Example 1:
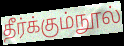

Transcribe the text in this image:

தீர்க்கும்நூல்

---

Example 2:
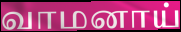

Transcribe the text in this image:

வாமனாய்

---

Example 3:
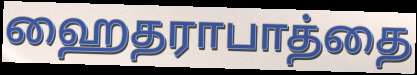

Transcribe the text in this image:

ஹைதராபாத்தை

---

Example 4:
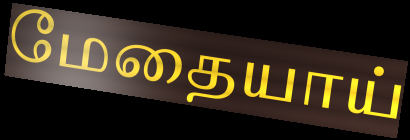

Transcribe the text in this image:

மேதையாய்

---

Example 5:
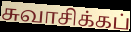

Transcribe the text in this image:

சுவாசிக்கப்